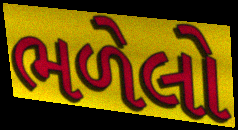
ભળેલો